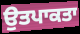
ਉਤਪਾਕਤਾ